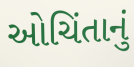
ઓચિંતાનું